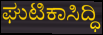
ಘುಟಿಕಾಸಿದ್ಧಿ